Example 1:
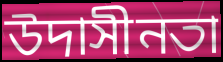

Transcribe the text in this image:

উদাসীনতা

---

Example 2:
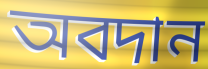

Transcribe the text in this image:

অবদান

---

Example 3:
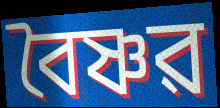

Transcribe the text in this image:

বৈষ্ণৱ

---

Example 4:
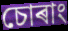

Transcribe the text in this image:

চোৰাং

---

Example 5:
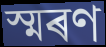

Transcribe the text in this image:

স্মৰণ